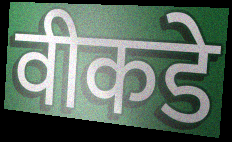
वीकडे